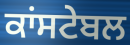
ਕਾਂਸਟੇਬਲ